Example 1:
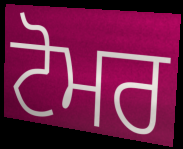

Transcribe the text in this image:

ਟੋਮਰ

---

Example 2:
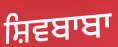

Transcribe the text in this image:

ਸ਼ਿਵਬਾਬਾ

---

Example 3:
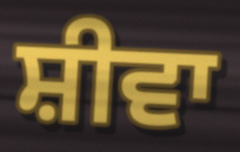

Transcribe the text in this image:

ਸ਼ੀਵਾ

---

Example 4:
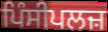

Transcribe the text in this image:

ਪਿੰਸੀਪਲਜ਼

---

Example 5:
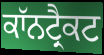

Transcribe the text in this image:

ਕਾੱਨਟ੍ਰੈਕਟ